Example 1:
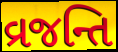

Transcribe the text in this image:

વ્રજન્તિ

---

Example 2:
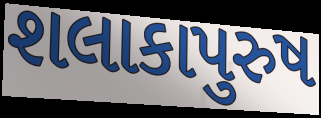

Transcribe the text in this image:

શલાકાપુરુષ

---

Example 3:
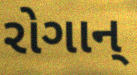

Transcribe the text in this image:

રોગાન્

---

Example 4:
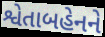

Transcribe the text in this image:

શ્વેતાબહેનને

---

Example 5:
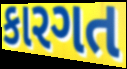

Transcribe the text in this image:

કારગત